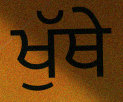
ਖੁੱਥੇ